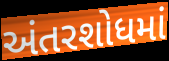
અંતરશોધમાં